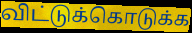
விட்டுக்கொடுக்க